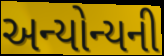
અન્યોન્યની